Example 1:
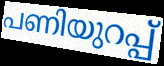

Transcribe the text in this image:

പണിയുറപ്പ്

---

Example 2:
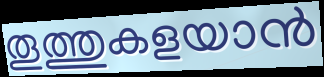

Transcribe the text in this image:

തൂത്തുകളയാൻ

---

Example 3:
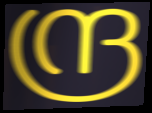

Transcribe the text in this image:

ന്ദ്ര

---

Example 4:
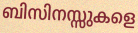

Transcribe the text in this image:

ബിസിനസ്സുകളെ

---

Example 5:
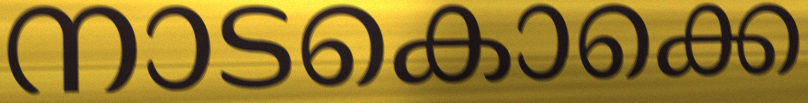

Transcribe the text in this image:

നാടകൊക്കെ